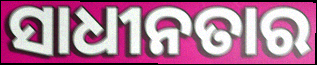
ସାଧୀନତାର